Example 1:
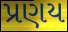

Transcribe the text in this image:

પ્રણય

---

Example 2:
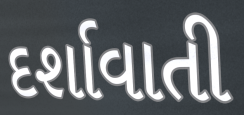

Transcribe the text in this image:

દર્શાવાતી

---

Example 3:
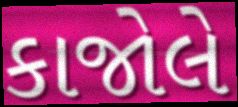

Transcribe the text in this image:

કાજોલે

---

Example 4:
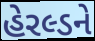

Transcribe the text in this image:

હેરલ્ડને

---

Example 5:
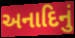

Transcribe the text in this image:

અનાદિનું